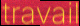
travail